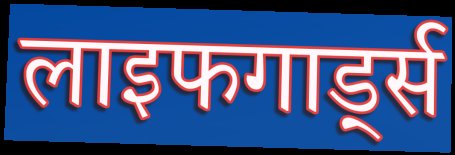
लाइफगार्ड्स